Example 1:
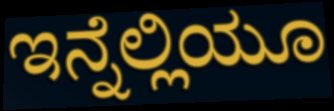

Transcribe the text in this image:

ಇನ್ನೆಲ್ಲಿಯೂ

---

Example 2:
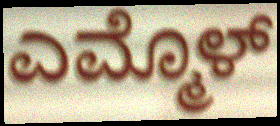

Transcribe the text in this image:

ಎಮ್ಮೊಳ್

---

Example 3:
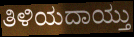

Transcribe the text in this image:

ತಿಳಿಯದಾಯ್ತು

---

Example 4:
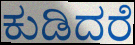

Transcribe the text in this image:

ಕುಡಿದರೆ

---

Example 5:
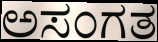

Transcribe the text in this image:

ಅಸಂಗತ